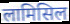
लामिसिल